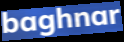
baghnar